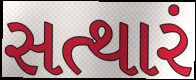
સત્થારં